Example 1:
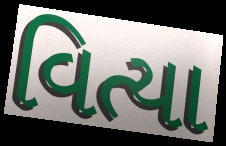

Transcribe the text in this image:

વિત્યા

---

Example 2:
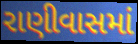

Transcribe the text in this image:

રાણીવાસમાં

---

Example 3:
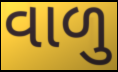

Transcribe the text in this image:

વાળુ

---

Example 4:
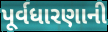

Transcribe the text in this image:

પૂર્વધારણાની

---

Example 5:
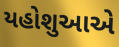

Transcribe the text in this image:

યહોશુઆએ